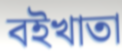
বইখাতা